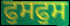
ਫੁਸਫੁਸ